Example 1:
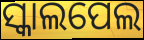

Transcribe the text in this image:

ସ୍କାଲପେଲ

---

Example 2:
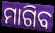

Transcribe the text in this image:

ମାଗିବ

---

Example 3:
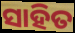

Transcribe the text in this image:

ସାହିତ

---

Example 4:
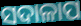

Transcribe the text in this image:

ସଦାଳାପ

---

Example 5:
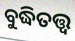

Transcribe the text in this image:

ବୁଦ୍ଧିତତ୍ତ୍ବ